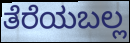
ತೆರೆಯಬಲ್ಲ